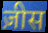
ज़ीस